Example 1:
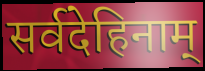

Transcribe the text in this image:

सर्वदेहिनाम्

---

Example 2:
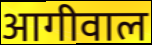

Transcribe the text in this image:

आगीवाल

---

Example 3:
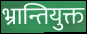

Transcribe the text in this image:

भ्रान्तियुक्त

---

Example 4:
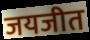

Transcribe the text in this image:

जयजीत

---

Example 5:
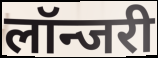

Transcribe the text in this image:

लॉन्जरी